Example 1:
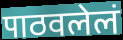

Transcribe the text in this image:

पाठवलेलं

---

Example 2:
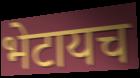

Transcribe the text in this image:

भेटायच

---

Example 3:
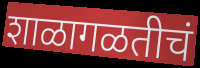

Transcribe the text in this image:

शाळागळतीचं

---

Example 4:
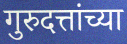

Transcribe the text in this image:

गुरुदत्तांच्या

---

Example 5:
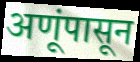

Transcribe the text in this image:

अणूंपासून